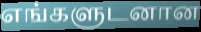
எங்களுடனான